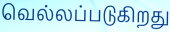
வெல்லப்படுகிறது